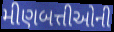
મીણબત્તીઓની